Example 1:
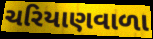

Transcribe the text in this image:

ચરિયાણવાળા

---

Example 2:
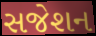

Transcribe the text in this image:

સજેશન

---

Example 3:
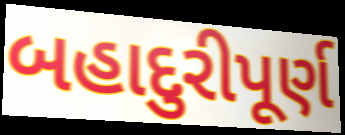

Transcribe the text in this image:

બહાદુરીપૂર્ણ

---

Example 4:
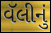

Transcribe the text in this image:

વૅલીનું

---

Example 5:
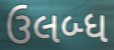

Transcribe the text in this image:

ઉલબ્ધ